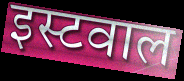
इस्टवाल